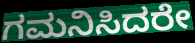
ಗಮನಿಸಿದರೇ